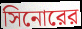
সিনোরের